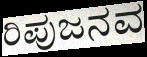
ರಿಪುಜನವ